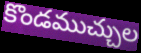
కొండముచ్చుల